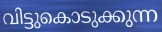
വിട്ടുകൊടുക്കുന്ന